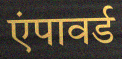
एंपावर्ड